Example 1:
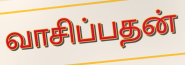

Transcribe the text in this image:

வாசிப்பதன்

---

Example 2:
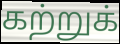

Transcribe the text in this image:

கற்றுக்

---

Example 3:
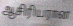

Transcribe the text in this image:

ஆசிரியரான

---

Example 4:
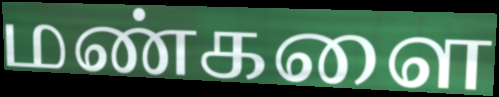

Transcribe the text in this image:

மண்களை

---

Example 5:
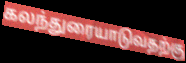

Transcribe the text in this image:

கலந்துரையாடுவதற்கு